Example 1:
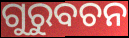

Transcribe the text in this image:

ଗୁରୁବଚନ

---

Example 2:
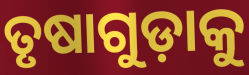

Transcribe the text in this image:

ତୃଷାଗୁଡ଼ାକୁ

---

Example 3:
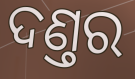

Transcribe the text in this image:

ଦଣ୍ତର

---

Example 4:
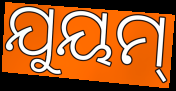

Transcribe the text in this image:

ଯୁୟମ୍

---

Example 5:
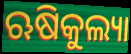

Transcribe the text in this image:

ଋଷିକୁଲ୍ୟା